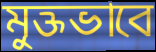
মুক্তভাবে